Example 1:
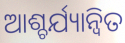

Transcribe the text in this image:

ଆଶ୍ଚର୍ଯ୍ୟାନ୍ୱିତ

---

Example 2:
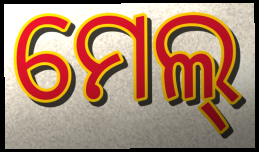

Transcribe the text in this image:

ମେଲ୍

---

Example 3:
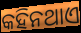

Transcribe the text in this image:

କହିନଥାଏ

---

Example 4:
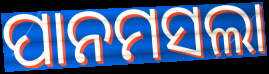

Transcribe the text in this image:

ପାନମସଲା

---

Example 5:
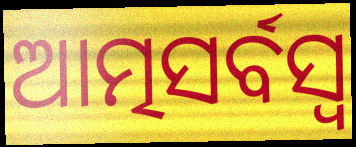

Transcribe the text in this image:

ଆତ୍ମସର୍ବସ୍ଵ